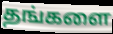
தங்களை